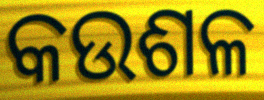
କଉଶଳ